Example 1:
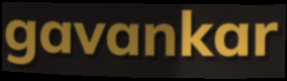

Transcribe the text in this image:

gavankar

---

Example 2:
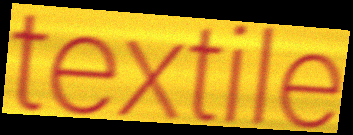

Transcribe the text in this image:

textile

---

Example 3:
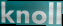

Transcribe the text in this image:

knoll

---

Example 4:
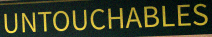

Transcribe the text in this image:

UNTOUCHABLES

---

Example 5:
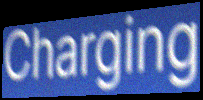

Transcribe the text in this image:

Charging